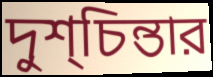
দুশ্‌চিন্তার